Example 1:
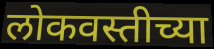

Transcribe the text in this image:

लोकवस्तीच्या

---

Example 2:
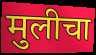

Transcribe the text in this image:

मुलीचा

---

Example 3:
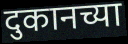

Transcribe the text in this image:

दुकानच्या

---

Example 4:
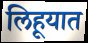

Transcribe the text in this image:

लिहूयात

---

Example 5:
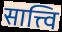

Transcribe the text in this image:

सात्त्वि